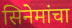
सिनेमांचा